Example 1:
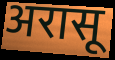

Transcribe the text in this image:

अरासू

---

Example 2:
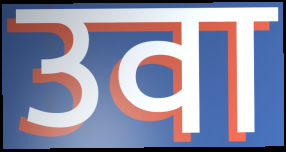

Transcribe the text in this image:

उवा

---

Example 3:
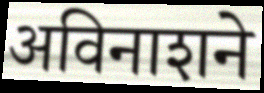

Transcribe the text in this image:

अविनाशने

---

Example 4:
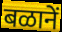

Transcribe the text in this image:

बळानें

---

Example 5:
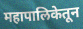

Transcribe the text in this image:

महापालिकेतून